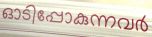
ഓടിപ്പോകുന്നവർ